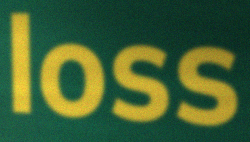
loss